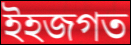
ইহজগত